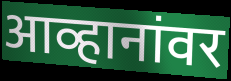
आव्हानांवर